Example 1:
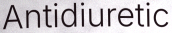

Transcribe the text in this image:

Antidiuretic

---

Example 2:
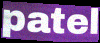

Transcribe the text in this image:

patel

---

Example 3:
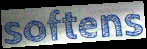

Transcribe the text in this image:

softens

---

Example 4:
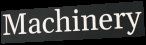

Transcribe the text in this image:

Machinery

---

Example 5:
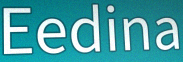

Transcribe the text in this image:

Eedina